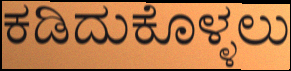
ಕಡಿದುಕೊಳ್ಳಲು